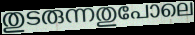
തുടരുന്നതുപോലെ